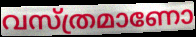
വസ്ത്രമാണോ